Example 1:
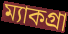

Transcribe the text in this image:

ম্যাকগ্রা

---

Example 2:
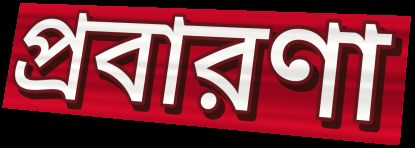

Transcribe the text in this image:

প্রবারণা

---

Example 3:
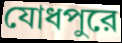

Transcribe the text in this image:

যোধপুরে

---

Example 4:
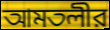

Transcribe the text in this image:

আমতলীর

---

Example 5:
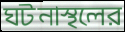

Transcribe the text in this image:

ঘটনাস্থলের